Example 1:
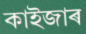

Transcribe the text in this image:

কাইজাৰ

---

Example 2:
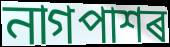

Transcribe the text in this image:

নাগপাশৰ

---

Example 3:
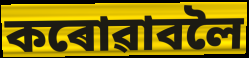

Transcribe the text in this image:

কৰোৱাবলৈ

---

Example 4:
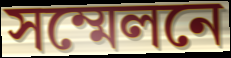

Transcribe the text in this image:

সম্মেলনে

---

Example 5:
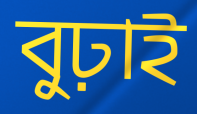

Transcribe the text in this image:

বুঢ়াই